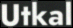
Utkal